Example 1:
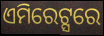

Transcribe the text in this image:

ଏମିରେଟ୍ସରେ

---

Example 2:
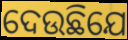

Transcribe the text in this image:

ଦେଉଛିଯେ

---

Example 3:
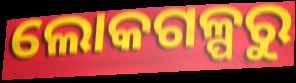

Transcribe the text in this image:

ଲୋକଗଳ୍ପରୁ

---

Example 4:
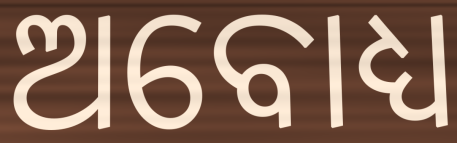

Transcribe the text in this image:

ଅବୋଧ୍ୟ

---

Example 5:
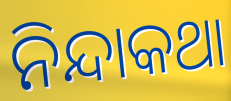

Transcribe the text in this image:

ନିନ୍ଦାକଥା